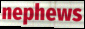
nephews